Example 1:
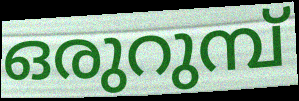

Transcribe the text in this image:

ഒരുറുമ്പ്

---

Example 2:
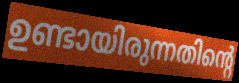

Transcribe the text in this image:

ഉണ്ടായിരുന്നതിന്റെ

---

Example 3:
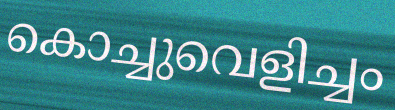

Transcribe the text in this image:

കൊച്ചുവെളിച്ചം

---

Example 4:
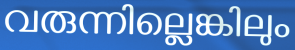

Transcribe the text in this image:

വരുന്നില്ലെങ്കിലും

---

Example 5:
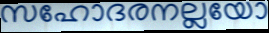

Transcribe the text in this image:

സഹോദരനല്ലയോ